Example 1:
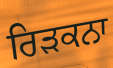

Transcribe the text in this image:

ਰਿੜਕਨਾ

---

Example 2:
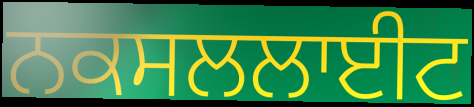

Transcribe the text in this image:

ਨਕਸਲਲਾਈਟ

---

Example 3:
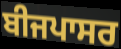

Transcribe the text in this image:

ਬੀਜਪਾਸਰ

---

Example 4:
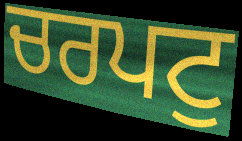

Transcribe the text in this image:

ਚਰਪਟੁ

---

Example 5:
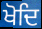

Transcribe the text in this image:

ਖੋਦਿ